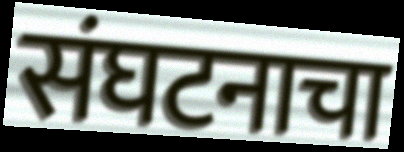
संघटनाचा